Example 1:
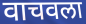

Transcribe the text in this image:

वाचवला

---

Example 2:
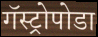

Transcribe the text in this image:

गॅस्ट्रोपोडा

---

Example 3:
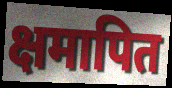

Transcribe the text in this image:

क्षमापित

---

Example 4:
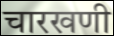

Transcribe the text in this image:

चारखणी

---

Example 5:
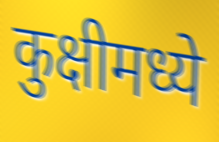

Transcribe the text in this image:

कुक्षीमध्ये